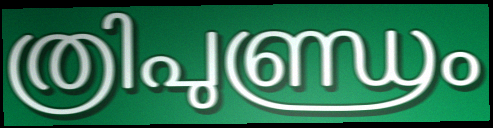
ത്രിപുണ്ഡ്രം